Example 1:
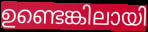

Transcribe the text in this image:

ഉണ്ടെങ്കിലായി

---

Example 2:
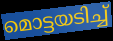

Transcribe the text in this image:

മൊട്ടയടിച്ച്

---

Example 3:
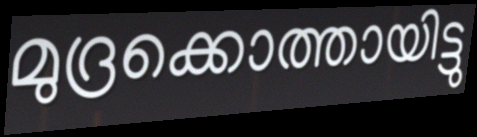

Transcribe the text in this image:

മുദ്രക്കൊത്തായിട്ടു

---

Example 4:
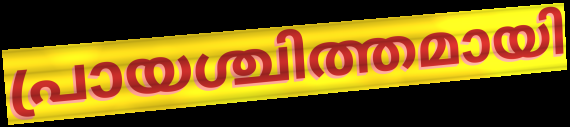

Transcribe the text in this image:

പ്രായശ്ചിത്തമായി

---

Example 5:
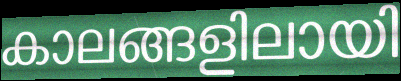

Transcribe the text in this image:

കാലങ്ങളിലായി